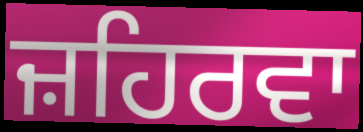
ਜ਼ਹਿਰਵਾ